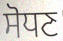
ਸੋਧਣ